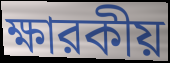
ক্ষারকীয়